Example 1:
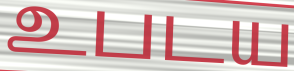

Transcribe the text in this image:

உபடய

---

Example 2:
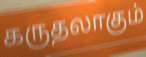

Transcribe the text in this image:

கருதலாகும்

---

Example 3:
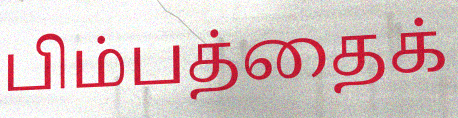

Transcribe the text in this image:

பிம்பத்தைக்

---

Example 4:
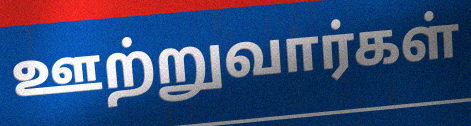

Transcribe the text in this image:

ஊற்றுவார்கள்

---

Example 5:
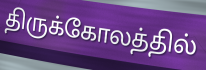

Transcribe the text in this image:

திருக்கோலத்தில்